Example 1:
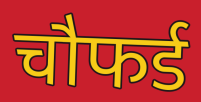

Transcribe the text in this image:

चौफर्ड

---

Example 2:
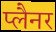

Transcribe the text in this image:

प्लैनर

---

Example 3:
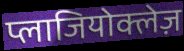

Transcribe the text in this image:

प्लाजियोक्लेज़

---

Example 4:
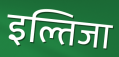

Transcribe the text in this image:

इल्तिजा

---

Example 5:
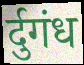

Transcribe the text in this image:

र्दुगंध